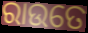
ରାଉତେ